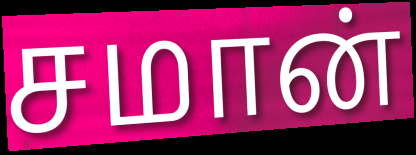
சமான்